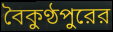
বৈকুণ্ঠপুরের